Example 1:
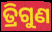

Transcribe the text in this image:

ତ୍ରିଗୁଣ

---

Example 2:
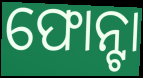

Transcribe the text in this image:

ଫୋନ୍ଟା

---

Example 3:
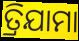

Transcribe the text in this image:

ତ୍ରିଯାମା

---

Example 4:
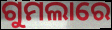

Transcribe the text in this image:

ଗୁମଲାରେ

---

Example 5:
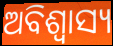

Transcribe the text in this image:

ଅବିଶ୍ଵାସ୍ୟ